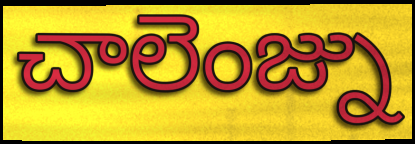
చాలెంజ్ను